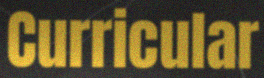
Curricular